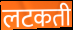
लटकती